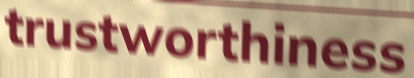
trustworthiness